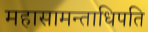
महासामन्ताधिपति